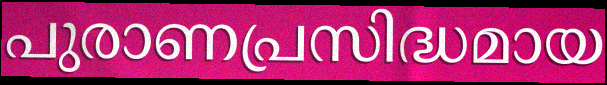
പുരാണപ്രസിദ്ധമായ